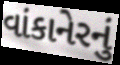
વાંકાનેરનું